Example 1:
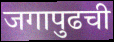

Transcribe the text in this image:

जगापुढची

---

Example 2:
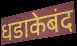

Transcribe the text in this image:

धडाकेबंद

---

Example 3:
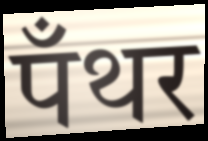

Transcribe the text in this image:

पँथर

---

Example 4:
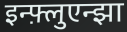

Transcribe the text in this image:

इन्फ़्लुएन्झा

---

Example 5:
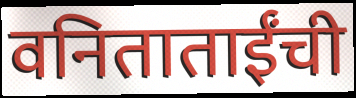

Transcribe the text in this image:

वनिताताईंची